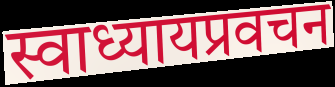
स्वाध्यायप्रवचन